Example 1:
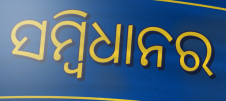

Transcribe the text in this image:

ସମ୍ବିଧାନର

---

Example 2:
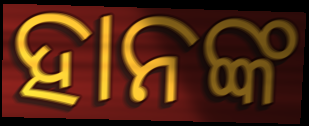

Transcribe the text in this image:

ହାନଙ୍କ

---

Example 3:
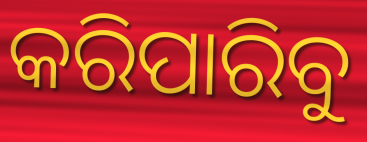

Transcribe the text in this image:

କରିପାରିବୁ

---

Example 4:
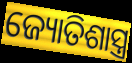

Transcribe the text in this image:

ଜ୍ୟୋତିଶାସ୍ତ୍ର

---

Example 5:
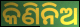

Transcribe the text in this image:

କିଣିନିଅ